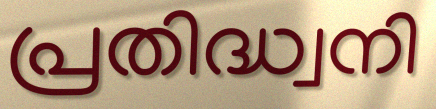
പ്രതിദ്ധ്വനി